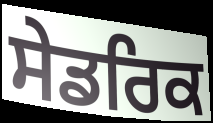
ਸੇਡਰਿਕ